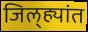
जिल्ह्यांत